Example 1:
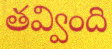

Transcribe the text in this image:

తవ్వింది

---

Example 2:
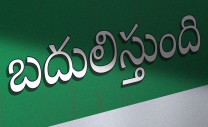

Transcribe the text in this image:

బదులిస్తుంది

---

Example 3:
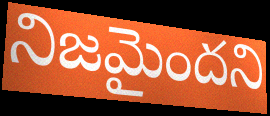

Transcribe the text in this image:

నిజమైందని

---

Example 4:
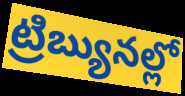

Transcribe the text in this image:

ట్రిబ్యునల్లో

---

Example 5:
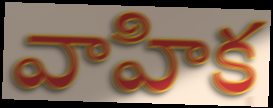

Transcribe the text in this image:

వాహిక